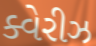
ક્વેરીઝ